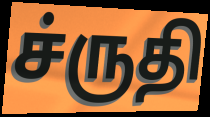
ச்ருதி